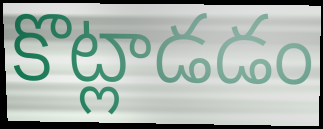
కొట్లాడడం